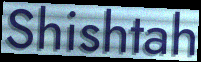
Shishtah